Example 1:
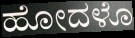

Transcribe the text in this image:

ಹೋದಳೊ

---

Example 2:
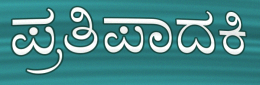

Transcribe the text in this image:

ಪ್ರತಿಪಾದಕಿ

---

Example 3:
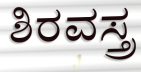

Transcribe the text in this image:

ಶಿರವಸ್ತ್ರ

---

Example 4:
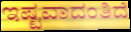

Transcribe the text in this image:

ಇಷ್ಟವಾದಂತಿದೆ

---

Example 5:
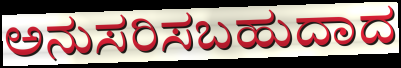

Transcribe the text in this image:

ಅನುಸರಿಸಬಹುದಾದ